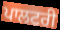
ਪਾਲਟਰੀ